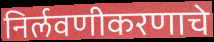
निर्लवणीकरणाचे